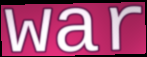
war